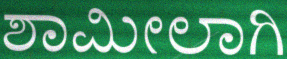
ಶಾಮೀಲಾಗಿ